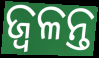
ଜ୍ଵଳନ୍ତ